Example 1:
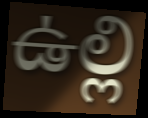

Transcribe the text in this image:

ఉల్లి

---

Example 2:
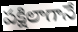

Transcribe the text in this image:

పక్షిలాగానే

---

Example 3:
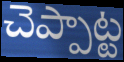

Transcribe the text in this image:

చెప్పాట్ట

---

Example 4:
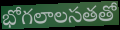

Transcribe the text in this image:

భోగలాలసతతో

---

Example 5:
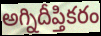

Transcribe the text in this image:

అగ్నిదీప్తికరం